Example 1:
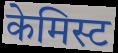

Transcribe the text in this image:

केमिस्ट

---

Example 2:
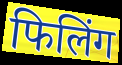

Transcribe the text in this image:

फिलिंग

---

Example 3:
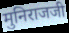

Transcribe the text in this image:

मुनिराजजी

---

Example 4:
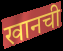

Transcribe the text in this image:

खानची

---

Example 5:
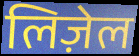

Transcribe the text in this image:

लिज़ेल